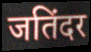
जतिंदर